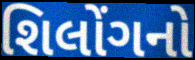
શિલોંગનો